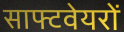
साफ्टवेयरों